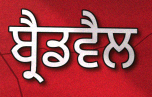
ਬ੍ਰੈਡਵੈਲ